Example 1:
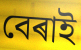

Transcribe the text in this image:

বেৰাই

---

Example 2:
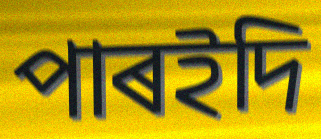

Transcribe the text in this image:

পাৰইদি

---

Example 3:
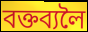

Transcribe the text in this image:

বক্তব্যলৈ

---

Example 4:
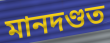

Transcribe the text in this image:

মানদণ্ডত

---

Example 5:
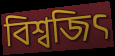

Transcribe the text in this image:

বিশ্বজিৎ